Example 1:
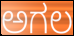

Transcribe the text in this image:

ಅಗಲ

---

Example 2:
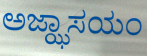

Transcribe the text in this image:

ಅಜ್ಝಾಸಯಂ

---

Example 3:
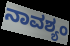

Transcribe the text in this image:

ನಾವಶ್ಯಂ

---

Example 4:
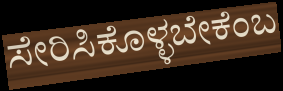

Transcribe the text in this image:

ಸೇರಿಸಿಕೊಳ್ಳಬೇಕೆಂಬ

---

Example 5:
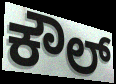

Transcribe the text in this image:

ಕೌಲ್